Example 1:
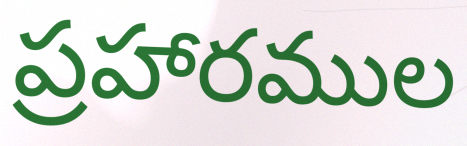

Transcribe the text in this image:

ప్రహారముల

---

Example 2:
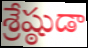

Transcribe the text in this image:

శ్రేష్ఠుడా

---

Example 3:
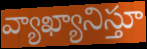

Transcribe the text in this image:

వ్యాఖ్యానిస్తూ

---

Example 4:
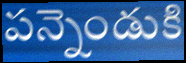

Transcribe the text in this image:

పన్నెండుకి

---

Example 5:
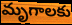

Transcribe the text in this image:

మృగాలకు